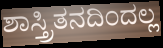
ಶಾಸ್ತ್ರಿತನದಿಂದಲ್ಲ